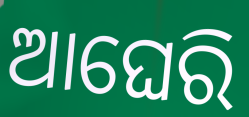
ଆଘେରି